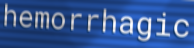
hemorrhagic